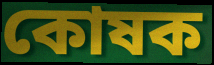
কোষক